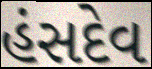
હંસદેવ